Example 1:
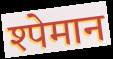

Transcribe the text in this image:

श्पेमान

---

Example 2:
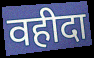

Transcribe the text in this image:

वहीदा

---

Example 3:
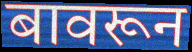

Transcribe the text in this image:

बावरून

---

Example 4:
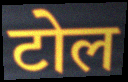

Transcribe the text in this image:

टोल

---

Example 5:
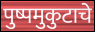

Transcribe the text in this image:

पुष्पमुकुटाचे